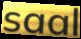
saal